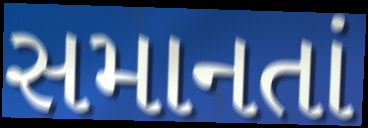
સમાનતાં